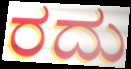
ರದು